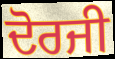
ਦੋਰਜੀ